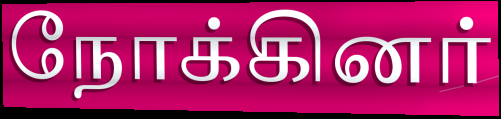
நோக்கினர்